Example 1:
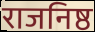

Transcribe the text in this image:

राजनिष्ठ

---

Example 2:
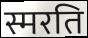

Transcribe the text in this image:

स्मरति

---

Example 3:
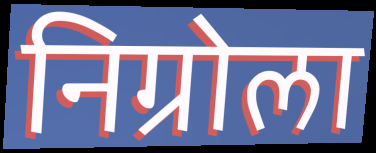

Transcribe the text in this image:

निग्रोला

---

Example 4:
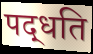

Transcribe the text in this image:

पद्धति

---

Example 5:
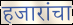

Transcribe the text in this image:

हजारांचा